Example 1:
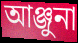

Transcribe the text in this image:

আঞ্জুনা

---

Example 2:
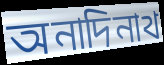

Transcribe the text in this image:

অনাদিনাথ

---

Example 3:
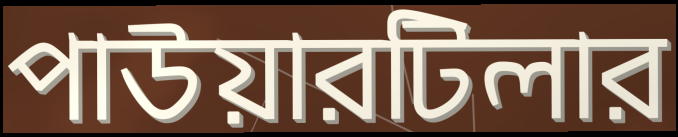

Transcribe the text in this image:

পাউয়ারটিলার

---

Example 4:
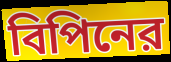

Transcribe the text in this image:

বিপিনের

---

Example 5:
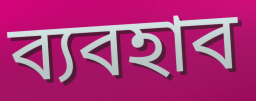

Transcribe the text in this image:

ব্যবহাব